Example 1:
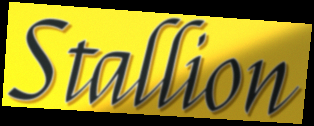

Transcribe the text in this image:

Stallion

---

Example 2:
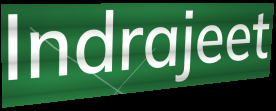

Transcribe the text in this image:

Indrajeet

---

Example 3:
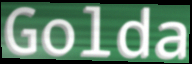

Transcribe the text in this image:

Golda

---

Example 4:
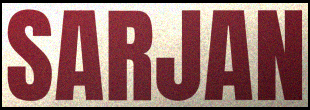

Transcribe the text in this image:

SARJAN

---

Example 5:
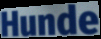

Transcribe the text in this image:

Hunde